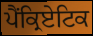
ਪੈਂਕ੍ਰਿਏਟਿਕ